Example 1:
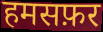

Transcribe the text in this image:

हमसफ़र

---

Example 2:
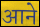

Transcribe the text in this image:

आने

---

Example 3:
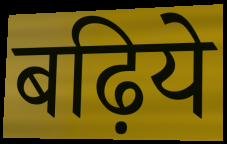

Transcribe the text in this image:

बढ़िये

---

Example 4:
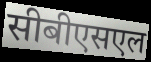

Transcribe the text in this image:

सीबीएसएल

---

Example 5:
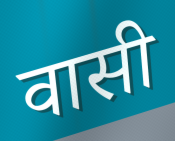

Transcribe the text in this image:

वासी